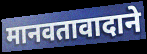
मानवतावादाने